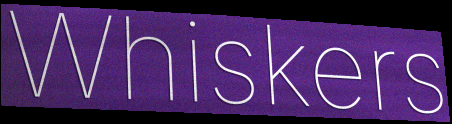
Whiskers